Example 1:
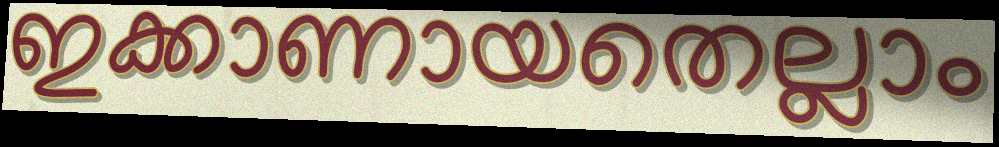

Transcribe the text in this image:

ഇക്കാണായതെല്ലാം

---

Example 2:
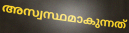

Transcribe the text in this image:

അസ്വസ്ഥമാകുന്നത്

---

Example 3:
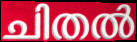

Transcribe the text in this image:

ചിതൽ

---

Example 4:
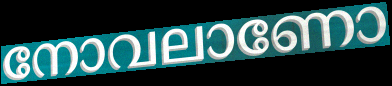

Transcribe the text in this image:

നോവലാണോ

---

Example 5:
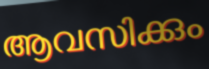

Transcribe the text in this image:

ആവസിക്കും